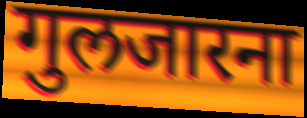
गुलजारना